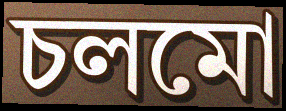
চলমো